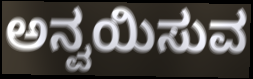
ಅನ್ವಯಿಸುವ